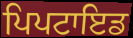
ਪਿਪਟਾਇਡ